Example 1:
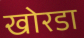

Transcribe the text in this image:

खोरडा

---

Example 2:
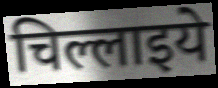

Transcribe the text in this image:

चिल्लाइये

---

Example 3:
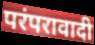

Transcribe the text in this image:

परंपरावादी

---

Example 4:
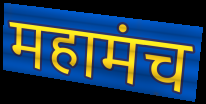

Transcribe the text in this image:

महामंच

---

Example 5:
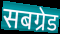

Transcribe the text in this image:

सबग्रेड